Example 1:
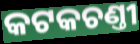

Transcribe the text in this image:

କଟକଚଣ୍ତୀ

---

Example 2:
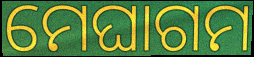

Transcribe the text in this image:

ମେଘାଗମ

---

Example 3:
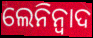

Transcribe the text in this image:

ଲେନିନ୍ବାଦ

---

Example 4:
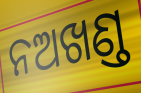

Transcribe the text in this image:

ନଅଖଣ୍ଡ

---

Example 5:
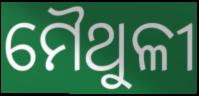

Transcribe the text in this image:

ମୈଥୁଳୀ